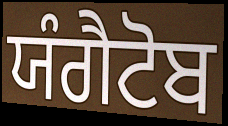
ਯੰਗੈਟੋਬ